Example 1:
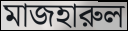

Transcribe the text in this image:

মাজহারুল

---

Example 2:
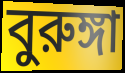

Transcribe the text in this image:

বুরুঙ্গা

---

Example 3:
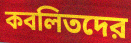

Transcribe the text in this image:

কবলিতদের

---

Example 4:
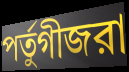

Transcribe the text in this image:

পর্তুগীজরা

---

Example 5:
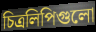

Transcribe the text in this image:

চিত্রলিপিগুলো